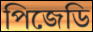
পিজেডি